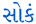
સોકં